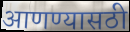
आणण्यासठी